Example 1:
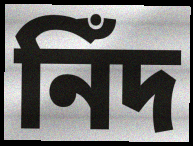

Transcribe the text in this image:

নিঁদ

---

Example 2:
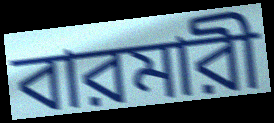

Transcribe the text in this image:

বারমারী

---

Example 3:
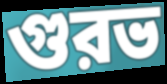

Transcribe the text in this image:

গুরভ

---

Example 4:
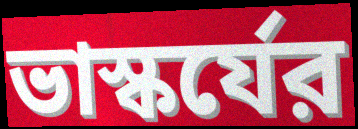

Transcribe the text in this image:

ভাস্কর্যের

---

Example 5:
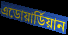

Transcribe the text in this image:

এডোয়ার্ডিয়ান